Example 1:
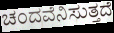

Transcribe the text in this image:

ಚಂದವೆನಿಸುತ್ತದೆ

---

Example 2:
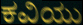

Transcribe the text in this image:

ಕವಿಯು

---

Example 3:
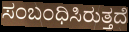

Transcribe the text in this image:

ಸಂಬಂಧಿಸಿರುತ್ತದೆ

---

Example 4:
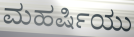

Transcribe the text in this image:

ಮಹರ್ಷಿಯು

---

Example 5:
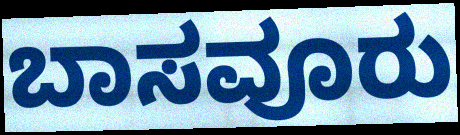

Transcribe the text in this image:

ಬಾಸವೂರು